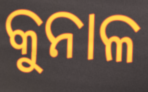
କୁନାଳ